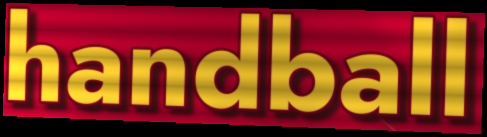
handball